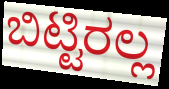
ಬಿಟ್ಟಿರಲ್ಲ